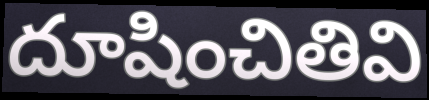
దూషించితివి